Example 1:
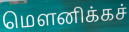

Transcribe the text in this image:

மௌனிக்கச்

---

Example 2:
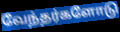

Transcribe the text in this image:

வேந்தர்களோடு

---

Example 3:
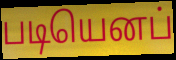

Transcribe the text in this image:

படியெனப்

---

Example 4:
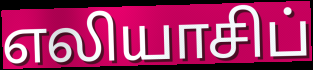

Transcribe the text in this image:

எலியாசிப்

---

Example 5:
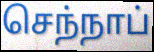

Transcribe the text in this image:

செந்நாப்